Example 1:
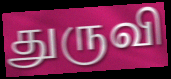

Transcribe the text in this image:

துருவி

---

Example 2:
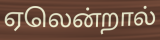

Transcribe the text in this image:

ஏலென்றால்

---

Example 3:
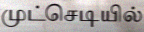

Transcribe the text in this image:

முட்செடியில்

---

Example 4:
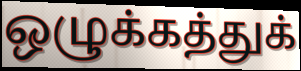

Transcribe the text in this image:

ஒழுக்கத்துக்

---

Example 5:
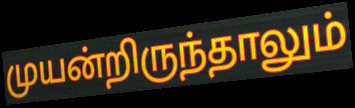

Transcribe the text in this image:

முயன்றிருந்தாலும்